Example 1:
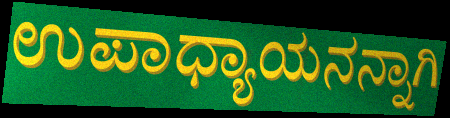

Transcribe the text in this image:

ಉಪಾಧ್ಯಾಯನನ್ನಾಗಿ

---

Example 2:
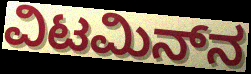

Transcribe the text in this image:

ವಿಟಮಿನ್‌ನ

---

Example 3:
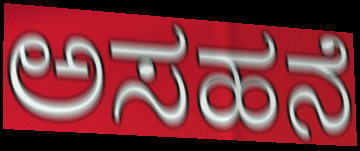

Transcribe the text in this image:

ಅಸಹನೆ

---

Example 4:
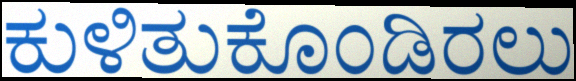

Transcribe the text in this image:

ಕುಳಿತುಕೊಂಡಿರಲು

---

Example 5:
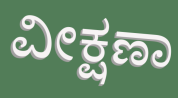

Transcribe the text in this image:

ವೀಕ್ಷಣಾ